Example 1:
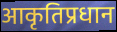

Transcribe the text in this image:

आकृतिप्रधान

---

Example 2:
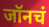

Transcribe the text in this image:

जॉनचं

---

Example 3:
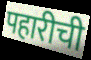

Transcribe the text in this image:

पहारीची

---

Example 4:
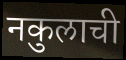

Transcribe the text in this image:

नकुलाची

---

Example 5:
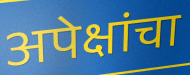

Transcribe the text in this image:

अपेक्षांचा